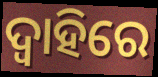
ଦ୍ୱାହିରେ